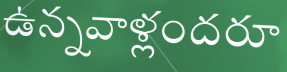
ఉన్నవాళ్లందరూ